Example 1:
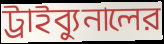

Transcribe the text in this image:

ট্রাইব্যুনালের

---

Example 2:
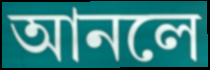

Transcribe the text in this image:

আনলে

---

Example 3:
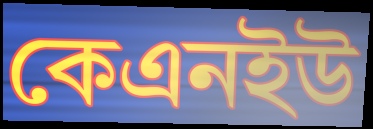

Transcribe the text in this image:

কেএনইউ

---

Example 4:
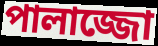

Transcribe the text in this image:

পালাজ্জো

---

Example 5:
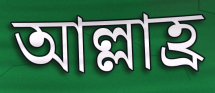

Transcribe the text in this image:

আল্লাহ্র